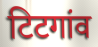
टिटगांव